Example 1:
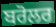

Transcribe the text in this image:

ਬਰੋਲਰ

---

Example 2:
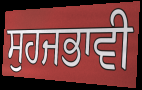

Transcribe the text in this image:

ਸੁਹਜਭਾਵੀ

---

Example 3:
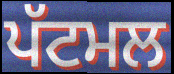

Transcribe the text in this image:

ਪੱਟਮਲ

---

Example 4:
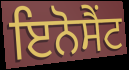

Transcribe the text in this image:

ਇਨੋਸੈਂਟ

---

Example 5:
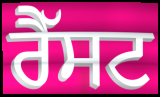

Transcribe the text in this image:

ਰੈੱਸਟ